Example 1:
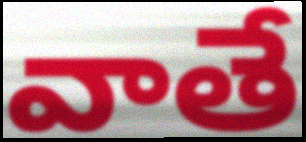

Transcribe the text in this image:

వాతే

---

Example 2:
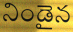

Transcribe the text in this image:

నిండైన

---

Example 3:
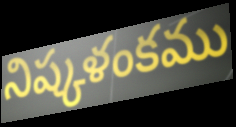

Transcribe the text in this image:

నిష్కళంకము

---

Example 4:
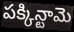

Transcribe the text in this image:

పక్కిన్టామె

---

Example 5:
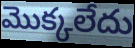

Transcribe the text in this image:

మొక్కలేదు